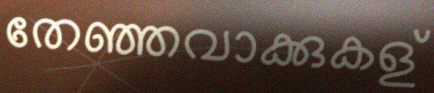
തേഞ്ഞവാക്കുകള്